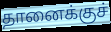
தானைக்குச்